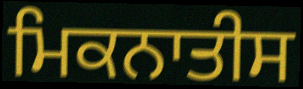
ਮਿਕਨਾਤੀਸ